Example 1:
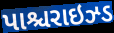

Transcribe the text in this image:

પાશ્ચરાઇઝ્ડ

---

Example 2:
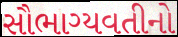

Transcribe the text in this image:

સૌભાગ્યવતીનો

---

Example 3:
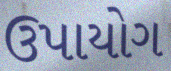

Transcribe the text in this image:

ઉપાયોગ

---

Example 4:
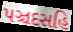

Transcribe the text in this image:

પઞ્ચદસહિ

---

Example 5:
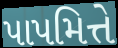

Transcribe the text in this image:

પાપમિત્તે